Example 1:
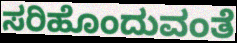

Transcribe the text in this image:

ಸರಿಹೊಂದುವಂತೆ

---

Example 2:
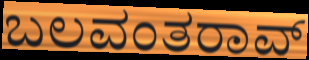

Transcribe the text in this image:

ಬಲವಂತರಾವ್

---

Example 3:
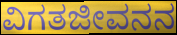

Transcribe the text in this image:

ವಿಗತಜೀವನನ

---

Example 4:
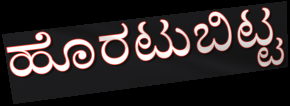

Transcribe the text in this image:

ಹೊರಟುಬಿಟ್ಟ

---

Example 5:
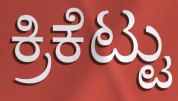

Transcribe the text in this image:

ಕ್ರಿಕೆಟ್ಟು